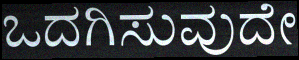
ಒದಗಿಸುವುದೇ